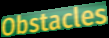
Obstacles